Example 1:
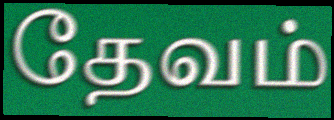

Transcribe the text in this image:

தேவம்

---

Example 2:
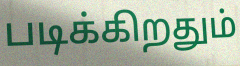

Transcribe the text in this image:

படிக்கிறதும்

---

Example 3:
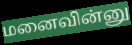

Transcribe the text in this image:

மனைவின்னு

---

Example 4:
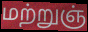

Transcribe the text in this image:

மற்றுஞ்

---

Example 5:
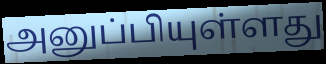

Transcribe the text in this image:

அனுப்பியுள்ளது